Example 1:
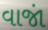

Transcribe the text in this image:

વાજાં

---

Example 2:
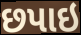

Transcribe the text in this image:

છપાઇ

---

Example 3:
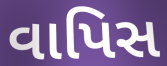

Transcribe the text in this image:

વાપિસ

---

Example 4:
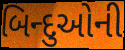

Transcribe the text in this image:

બિન્દુઓની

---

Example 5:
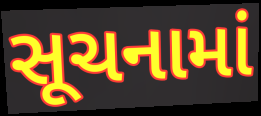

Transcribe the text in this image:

સૂચનામાં